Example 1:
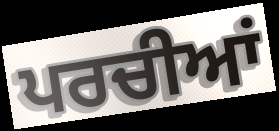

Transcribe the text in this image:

ਪਰਚੀਆਂ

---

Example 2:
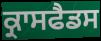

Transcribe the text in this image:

ਕ੍ਰਾਸਫੈਡਸ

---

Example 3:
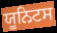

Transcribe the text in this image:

ਯੂਨਿਟਸ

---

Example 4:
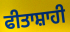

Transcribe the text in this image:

ਫੀਤਾਸ਼ਾਹੀ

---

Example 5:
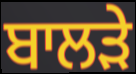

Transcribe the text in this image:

ਬਾਲੜੇ